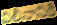
విలీనానికి